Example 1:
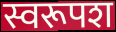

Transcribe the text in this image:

स्वरूपश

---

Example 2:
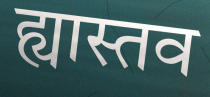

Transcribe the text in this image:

ह्यास्तव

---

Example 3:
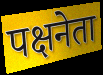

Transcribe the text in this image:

पक्षनेता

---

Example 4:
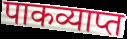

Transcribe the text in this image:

पाकव्याप्त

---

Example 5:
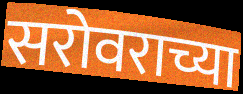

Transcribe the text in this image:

सरोवराच्या